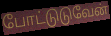
போட்டுடுவேன்